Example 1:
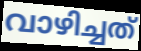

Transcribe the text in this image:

വാഴിച്ചത്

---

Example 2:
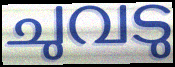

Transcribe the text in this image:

ചുവടു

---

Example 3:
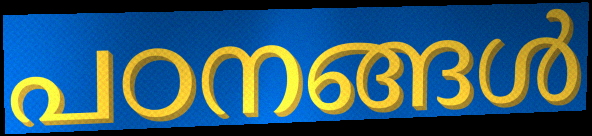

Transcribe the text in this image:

പഠനങ്ങൾ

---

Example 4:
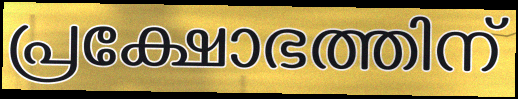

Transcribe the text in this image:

പ്രക്ഷോഭത്തിന്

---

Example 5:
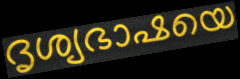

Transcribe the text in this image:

ദൃശ്യഭാഷയെ